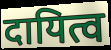
दायित्व